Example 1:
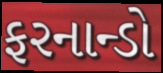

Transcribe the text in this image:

ફરનાન્ડો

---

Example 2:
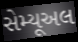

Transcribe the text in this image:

સેમ્યૂઅલ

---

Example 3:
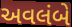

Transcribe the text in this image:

અવલંબે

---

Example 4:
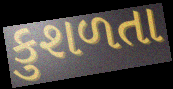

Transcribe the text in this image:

કુશળતા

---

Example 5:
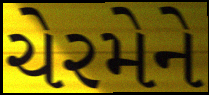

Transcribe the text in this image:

ચેરમેને